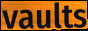
vaults